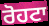
ਰੋਹਟਾ